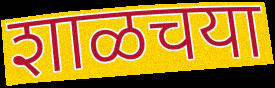
शाळचया